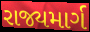
રાજ્યમાર્ગ